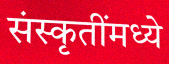
संस्कृतींमध्ये